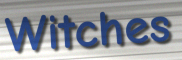
Witches